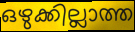
ഒഴുക്കില്ലാത്ത